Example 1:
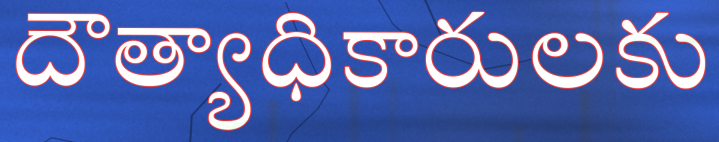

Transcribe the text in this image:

దౌత్యాధికారులకు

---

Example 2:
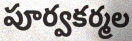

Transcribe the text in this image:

పూర్వకర్మల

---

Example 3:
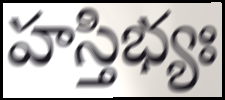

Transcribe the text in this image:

హస్తిభ్యః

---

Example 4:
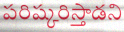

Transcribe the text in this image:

పరిష్కరిస్తాడని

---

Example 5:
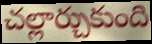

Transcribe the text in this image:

చల్లార్చుకుంది